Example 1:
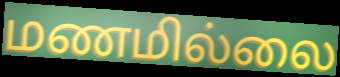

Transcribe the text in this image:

மணமில்லை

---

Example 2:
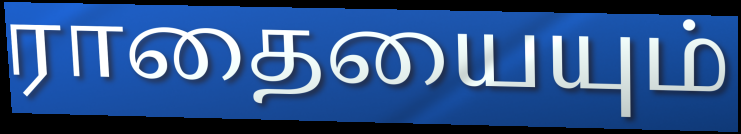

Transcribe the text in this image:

ராதையையும்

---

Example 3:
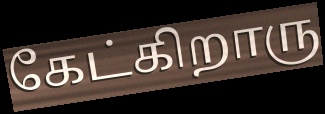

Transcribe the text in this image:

கேட்கிறாரு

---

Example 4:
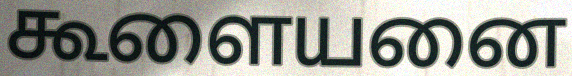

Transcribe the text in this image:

கூளையனை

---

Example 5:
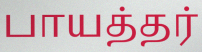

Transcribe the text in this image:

பாயத்தர்